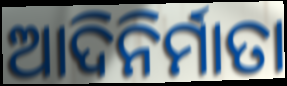
ଆଦିନିର୍ମାତା